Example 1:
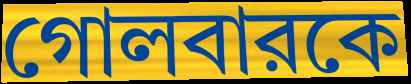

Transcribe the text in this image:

গোলবারকে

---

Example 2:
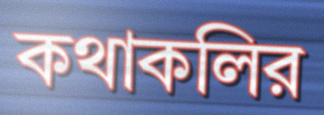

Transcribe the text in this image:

কথাকলির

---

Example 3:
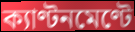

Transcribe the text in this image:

ক্যাণ্টনমেণ্টে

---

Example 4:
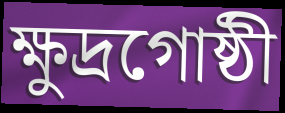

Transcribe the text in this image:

ক্ষুদ্রগোষ্ঠী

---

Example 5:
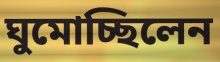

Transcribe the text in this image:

ঘুমোচ্ছিলেন